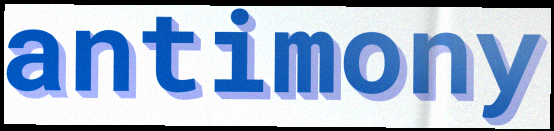
antimony